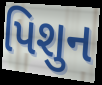
પિશુન